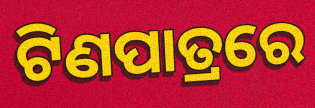
ଟିଣପାତ୍ରରେ